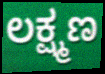
ಲಕ್ಷ್ಮಣ